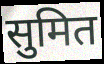
सुमित